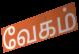
வேகம்